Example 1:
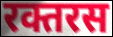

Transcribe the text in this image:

रक्तरस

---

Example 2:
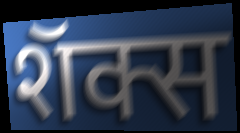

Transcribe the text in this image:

शॅक्स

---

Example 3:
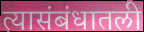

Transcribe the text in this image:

त्यासंबंधातली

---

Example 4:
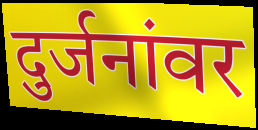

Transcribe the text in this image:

दुर्जनांवर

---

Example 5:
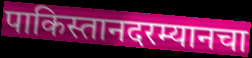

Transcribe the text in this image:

पाकिस्तानदरम्यानचा